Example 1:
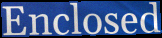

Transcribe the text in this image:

Enclosed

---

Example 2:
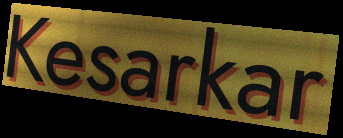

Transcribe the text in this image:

Kesarkar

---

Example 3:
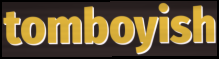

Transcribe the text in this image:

tomboyish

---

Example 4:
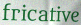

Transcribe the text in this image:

fricative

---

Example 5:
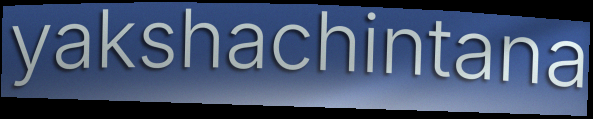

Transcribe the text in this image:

yakshachintana